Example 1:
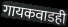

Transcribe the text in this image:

गायकवाडही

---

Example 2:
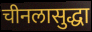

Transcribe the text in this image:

चीनलासुद्धा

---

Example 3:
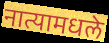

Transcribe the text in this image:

नात्यामधले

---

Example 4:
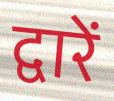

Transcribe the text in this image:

द्वारें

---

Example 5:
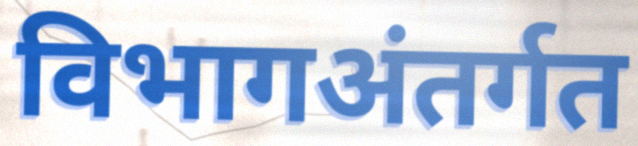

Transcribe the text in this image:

विभागअंतर्गत